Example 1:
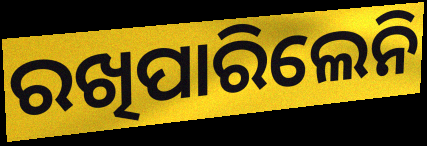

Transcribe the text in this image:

ରଖିପାରିଲେନି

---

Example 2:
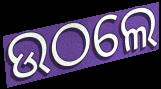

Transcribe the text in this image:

ଉଠଲେ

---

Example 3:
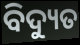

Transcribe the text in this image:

ବିଦ୍ୟୁତ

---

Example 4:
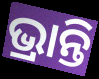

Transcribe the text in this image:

ଭ୍ରାନ୍ତି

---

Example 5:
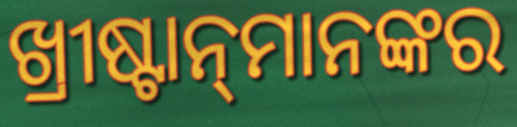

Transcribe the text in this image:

ଖ୍ରୀଷ୍ଟାନ୍‌ମାନଙ୍କର